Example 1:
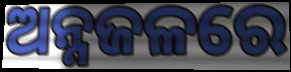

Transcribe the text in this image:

ଅନ୍ନଜଳରେ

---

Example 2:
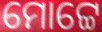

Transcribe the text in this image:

ମୋଟ୍ଟେ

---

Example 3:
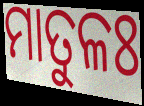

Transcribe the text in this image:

ମାତୁଳଃ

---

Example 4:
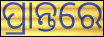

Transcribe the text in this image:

ପ୍ରାନ୍ତରେ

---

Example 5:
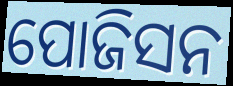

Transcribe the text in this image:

ପୋଜିସନ